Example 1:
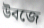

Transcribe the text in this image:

উবজে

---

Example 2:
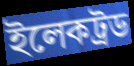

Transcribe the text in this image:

ইলেকট্রড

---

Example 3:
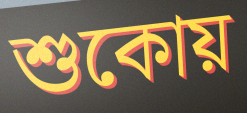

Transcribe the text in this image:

শুকোয়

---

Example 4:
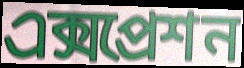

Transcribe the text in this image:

এক্সপ্রেশন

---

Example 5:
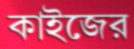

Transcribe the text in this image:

কাইজের